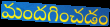
మందగించడం